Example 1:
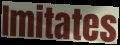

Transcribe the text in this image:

Imitates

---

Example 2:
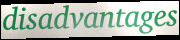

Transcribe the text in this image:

disadvantages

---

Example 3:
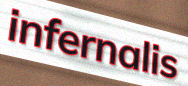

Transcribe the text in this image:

infernalis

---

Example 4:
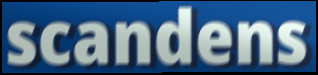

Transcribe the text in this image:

scandens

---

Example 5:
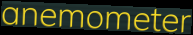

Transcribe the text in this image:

anemometer